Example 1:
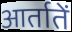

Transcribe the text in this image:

आर्तातें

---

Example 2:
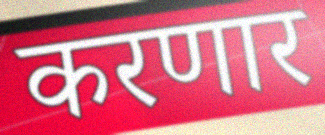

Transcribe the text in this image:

करणार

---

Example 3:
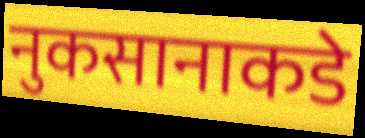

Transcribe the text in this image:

नुकसानाकडे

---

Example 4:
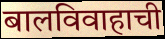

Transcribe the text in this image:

बालविवाहाची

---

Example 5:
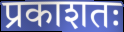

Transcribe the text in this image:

प्रकाशतः